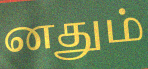
னதும்